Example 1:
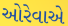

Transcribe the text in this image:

ઓરેવાએ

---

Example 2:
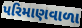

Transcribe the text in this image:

પરિમાણવાળા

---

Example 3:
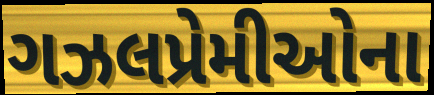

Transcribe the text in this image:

ગઝલપ્રેમીઓના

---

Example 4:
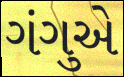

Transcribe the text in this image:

ગંગુએ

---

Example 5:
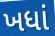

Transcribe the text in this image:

ખધાં